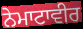
ਨੇਮਾਟਾਵੀਰ